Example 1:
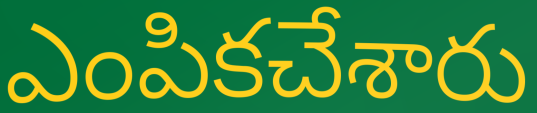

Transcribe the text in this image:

ఎంపికచేశారు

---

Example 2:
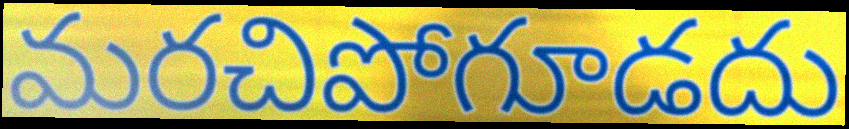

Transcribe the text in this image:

మరచిపోగూడదు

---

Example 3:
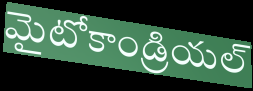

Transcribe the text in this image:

మైటోకాండ్రియల్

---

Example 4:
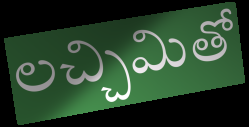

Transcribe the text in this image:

లచ్చిమితో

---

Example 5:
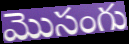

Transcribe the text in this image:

మొసంగు